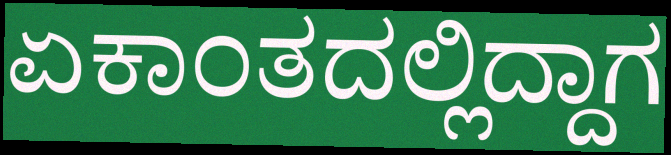
ಏಕಾಂತದಲ್ಲಿದ್ದಾಗ